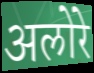
अलोरे